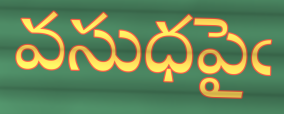
వసుధపైఁ